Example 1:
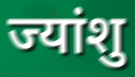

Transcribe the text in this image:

ज्यांशु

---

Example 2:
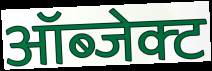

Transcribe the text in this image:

ऑब्‍जेक्‍ट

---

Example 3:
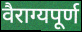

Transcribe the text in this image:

वैराग्यपूर्ण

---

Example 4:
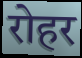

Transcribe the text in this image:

रोहर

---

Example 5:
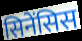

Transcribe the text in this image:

सिनेंसिस